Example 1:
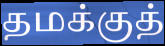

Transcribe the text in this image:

தமக்குத்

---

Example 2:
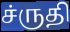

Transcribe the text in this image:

ச்ருதி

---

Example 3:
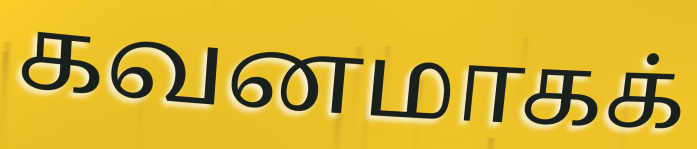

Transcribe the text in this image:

கவனமாகக்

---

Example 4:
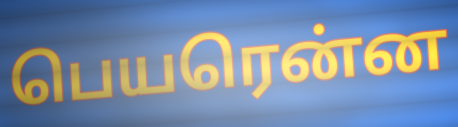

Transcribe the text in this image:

பெயரென்ன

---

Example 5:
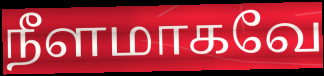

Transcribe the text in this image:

நீளமாகவே